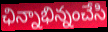
ఛిన్నాభిన్నంచేసి